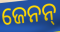
ଜେନନ୍